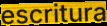
escritura